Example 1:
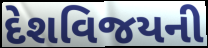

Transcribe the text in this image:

દેશવિજયની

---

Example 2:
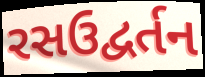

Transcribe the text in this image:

રસઉદ્વર્તન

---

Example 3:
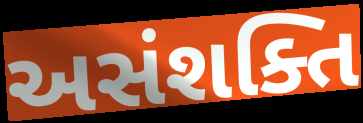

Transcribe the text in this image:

અસંશક્તિ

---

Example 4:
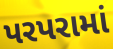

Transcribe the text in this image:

પરપરામાં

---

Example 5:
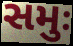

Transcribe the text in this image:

સમુઃ